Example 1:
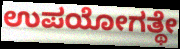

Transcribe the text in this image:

ಉಪಯೋಗತ್ಥೇ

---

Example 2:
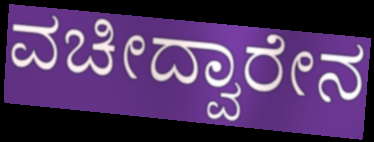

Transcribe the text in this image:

ವಚೀದ್ವಾರೇನ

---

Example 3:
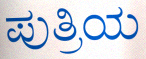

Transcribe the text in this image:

ಪುತ್ರಿಯ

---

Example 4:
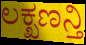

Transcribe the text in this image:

ಲಕ್ಖಣನ್ತಿ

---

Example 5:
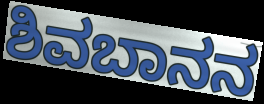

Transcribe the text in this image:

ಶಿವಬಾನನ